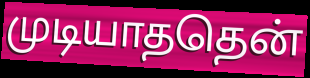
முடியாததென்